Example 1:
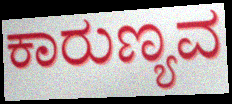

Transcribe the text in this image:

ಕಾರುಣ್ಯವ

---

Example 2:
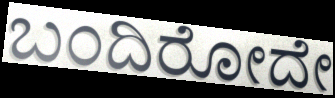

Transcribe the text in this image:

ಬಂದಿರೋದೇ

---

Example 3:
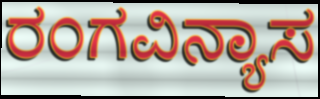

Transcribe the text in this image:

ರಂಗವಿನ್ಯಾಸ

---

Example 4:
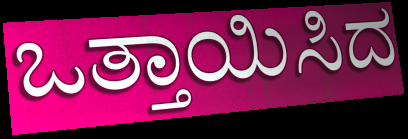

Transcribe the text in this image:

ಒತ್ತಾಯಿಸಿದ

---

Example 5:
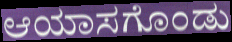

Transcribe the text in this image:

ಆಯಾಸಗೊಂಡು